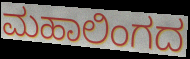
ಮಹಾಲಿಂಗದ